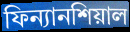
ফিন্যানশিয়াল